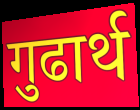
गुढार्थ